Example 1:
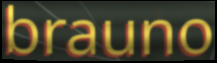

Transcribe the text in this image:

brauno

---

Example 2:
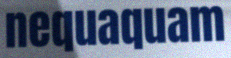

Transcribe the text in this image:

nequaquam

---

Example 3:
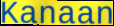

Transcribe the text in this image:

Kanaan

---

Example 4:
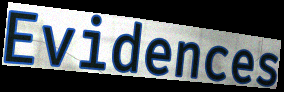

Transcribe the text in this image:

Evidences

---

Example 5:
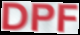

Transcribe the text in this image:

DPF